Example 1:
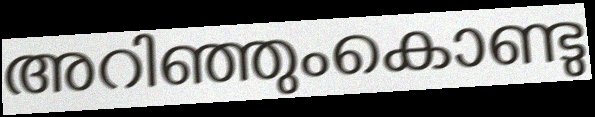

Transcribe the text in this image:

അറിഞ്ഞുംകൊണ്ടു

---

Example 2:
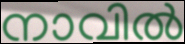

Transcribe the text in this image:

നാവിൽ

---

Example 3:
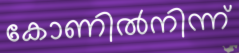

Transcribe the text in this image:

കോണിൽനിന്ന്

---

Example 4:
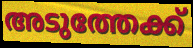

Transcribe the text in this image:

അടുത്തേക്ക്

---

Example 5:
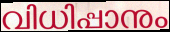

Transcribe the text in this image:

വിധിപ്പാനും